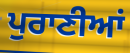
ਪੁਰਾਣੀਆਂ